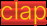
clap